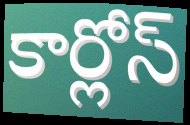
కార్లోస్